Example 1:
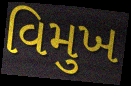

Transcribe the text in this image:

વિમુખ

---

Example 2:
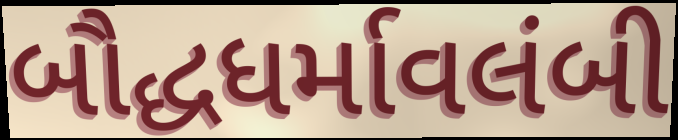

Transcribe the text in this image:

બૌદ્ધધર્માવલંબી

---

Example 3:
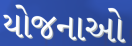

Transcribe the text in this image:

યોજનાઓ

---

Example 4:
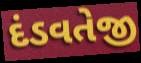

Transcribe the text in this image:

દંડવતેજી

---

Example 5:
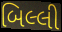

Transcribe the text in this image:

બિલ્લી